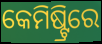
କେମିଷ୍ଟ୍ରିରେ